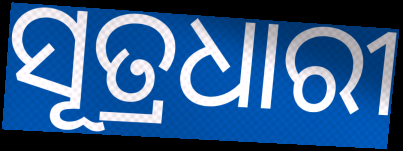
ସୂତ୍ରଧାରୀ